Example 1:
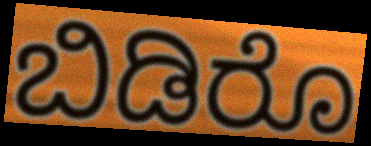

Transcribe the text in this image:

ಬಿಡಿರೊ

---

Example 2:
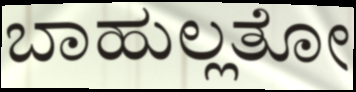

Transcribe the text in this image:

ಬಾಹುಲ್ಲತೋ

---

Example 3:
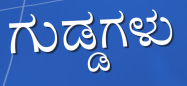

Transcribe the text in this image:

ಗುಡ್ಡಗಳು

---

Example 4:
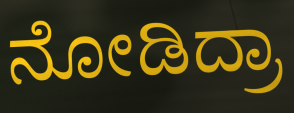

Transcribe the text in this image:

ನೋಡಿದ್ರಾ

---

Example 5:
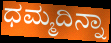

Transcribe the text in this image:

ಧಮ್ಮದಿನ್ನಾ